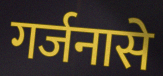
गर्जनासे